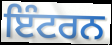
ਇੰਟਰਨ